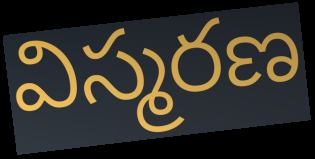
విస్మరణ